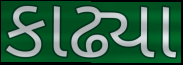
કાઢ્યા